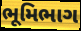
ભૂમિભાગ